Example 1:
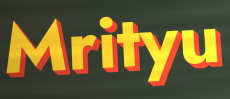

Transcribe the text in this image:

Mrityu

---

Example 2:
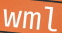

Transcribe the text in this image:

wml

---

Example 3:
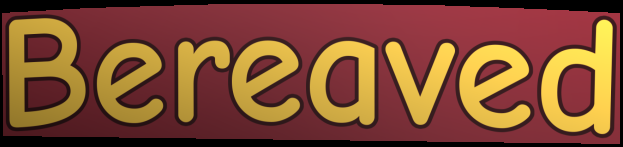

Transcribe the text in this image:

Bereaved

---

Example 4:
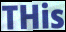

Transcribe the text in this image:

THis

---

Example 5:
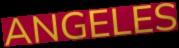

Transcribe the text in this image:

ANGELES